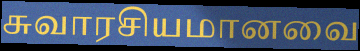
சுவாரசியமானவை